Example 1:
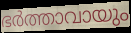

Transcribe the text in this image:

ഭർത്താവായും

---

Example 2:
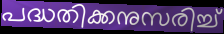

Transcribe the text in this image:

പദ്ധതിക്കനുസരിച്ച്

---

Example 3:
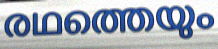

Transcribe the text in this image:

രഥത്തെയും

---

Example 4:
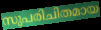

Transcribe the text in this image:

സുപരിചിതമായ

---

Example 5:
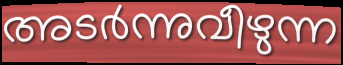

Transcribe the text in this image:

അടർന്നുവീഴുന്ന